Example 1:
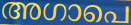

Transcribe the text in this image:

അഗാപെ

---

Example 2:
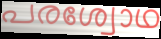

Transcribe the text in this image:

പരശ്വോഥ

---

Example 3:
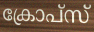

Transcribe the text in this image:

ക്രോപ്സ്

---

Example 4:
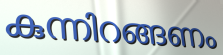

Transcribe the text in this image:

കുന്നിറങ്ങണം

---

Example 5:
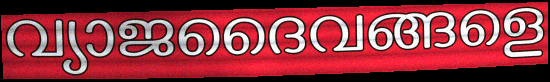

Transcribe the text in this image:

വ്യാജദൈവങ്ങളെ